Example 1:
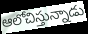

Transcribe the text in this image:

ఆలోచిస్తున్నాడు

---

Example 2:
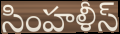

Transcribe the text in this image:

సింహళీస్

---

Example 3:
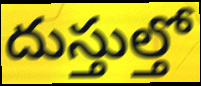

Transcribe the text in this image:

దుస్తుల్తో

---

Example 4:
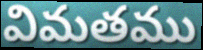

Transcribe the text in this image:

విమతము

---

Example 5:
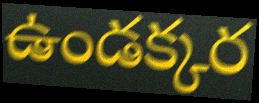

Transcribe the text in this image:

ఉండక్కర